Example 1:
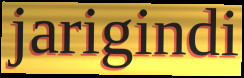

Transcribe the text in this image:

jarigindi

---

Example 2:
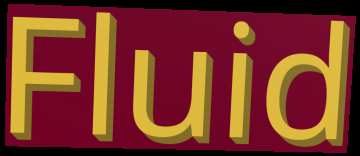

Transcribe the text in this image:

Fluid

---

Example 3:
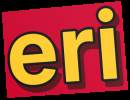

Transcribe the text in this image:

eri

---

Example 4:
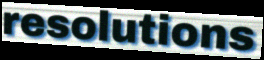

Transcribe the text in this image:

resolutions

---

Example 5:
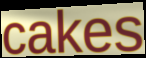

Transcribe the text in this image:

cakes